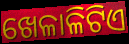
ଖେଳାଳିଟିଏ